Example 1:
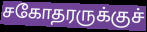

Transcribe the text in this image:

சகோதரருக்குச்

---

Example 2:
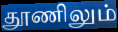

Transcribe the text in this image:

தூணிலும்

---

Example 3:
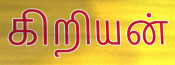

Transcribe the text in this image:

கிறியன்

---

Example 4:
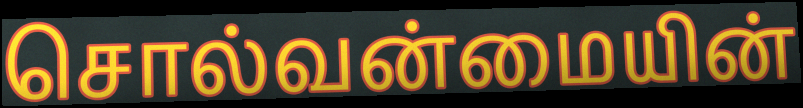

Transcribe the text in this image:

சொல்வன்மையின்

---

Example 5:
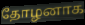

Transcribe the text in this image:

தோழனாக